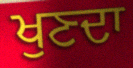
ਖੁਣਦਾ